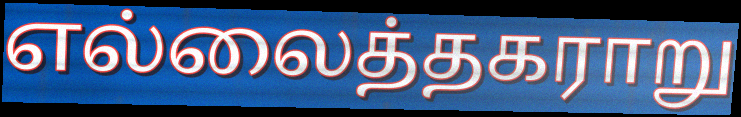
எல்லைத்தகராறு